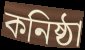
কনিষ্ঠা